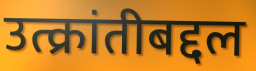
उत्क्रांतीबद्दल